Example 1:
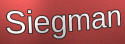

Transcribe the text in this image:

Siegman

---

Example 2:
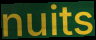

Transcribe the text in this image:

nuits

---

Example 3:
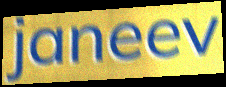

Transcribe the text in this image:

janeev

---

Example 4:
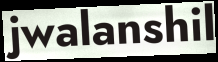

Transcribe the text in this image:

jwalanshil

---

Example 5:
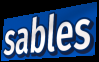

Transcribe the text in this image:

sables